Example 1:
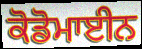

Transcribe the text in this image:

ਕੋਡੋਮਾਈਨ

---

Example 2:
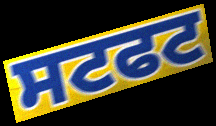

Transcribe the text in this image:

ਸਟਫਟ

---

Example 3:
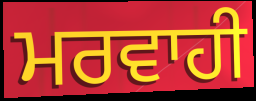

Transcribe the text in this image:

ਮਰਵਾਹੀ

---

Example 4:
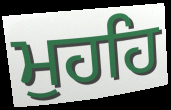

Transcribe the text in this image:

ਮੁਹਹਿ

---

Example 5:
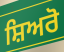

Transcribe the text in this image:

ਸ਼ਿਅਰੋ